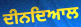
ਦੀਨਦਿਆਲ